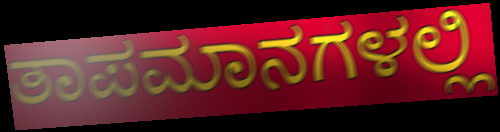
ತಾಪಮಾನಗಳಲ್ಲಿ